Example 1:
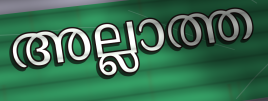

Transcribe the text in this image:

അല്ലാത്ത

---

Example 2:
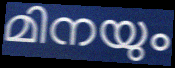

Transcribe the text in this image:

മിനയും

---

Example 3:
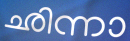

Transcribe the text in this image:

ഛിന്നാ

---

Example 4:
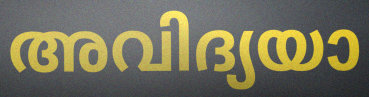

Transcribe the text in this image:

അവിദ്യയാ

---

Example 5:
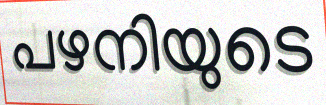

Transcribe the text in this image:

പഴനിയുടെ